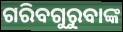
ଗରିବଗୁରୁବାଙ୍କ